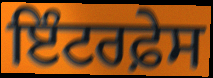
ਇੰਟਰਫ਼ੇਸ